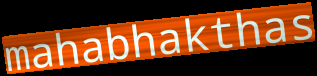
mahabhakthas